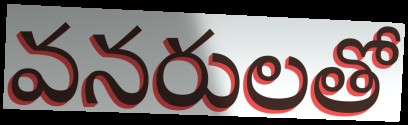
వనరులతో